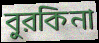
বুরকিনা